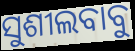
ସୁଶୀଲବାବୁ